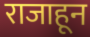
राजाहून